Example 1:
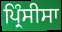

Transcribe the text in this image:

ਪ੍ਰਿੰਸੀਸਾ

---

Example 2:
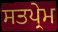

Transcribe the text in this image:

ਸਤਪ੍ਰੇਮ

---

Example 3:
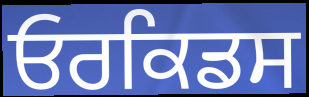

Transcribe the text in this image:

ਓਰਕਿਡਸ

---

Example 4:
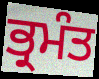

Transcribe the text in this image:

ਭ੍ਰਮੰਤ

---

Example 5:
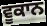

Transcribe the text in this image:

ਵੂਕਾਨ